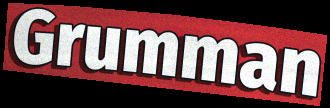
Grumman